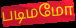
படிமமோ